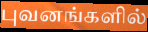
புவனங்களில்